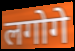
लगोगे